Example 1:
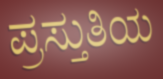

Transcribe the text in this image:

ಪ್ರಸ್ತುತಿಯ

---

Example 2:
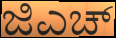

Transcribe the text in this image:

ಜಿಎಚ್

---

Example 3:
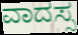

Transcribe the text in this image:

ವಾದಸ್ಸ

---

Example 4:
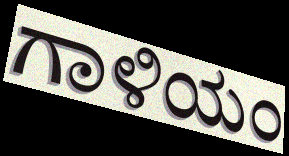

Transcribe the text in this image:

ಗಾಳಿಯಂ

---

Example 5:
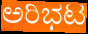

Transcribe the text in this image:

ಅರಿಭಟ